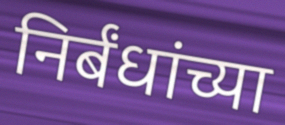
निर्बंधांच्या